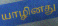
யாழினது